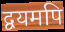
द्वयमपि